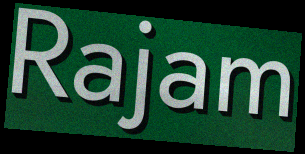
Rajam